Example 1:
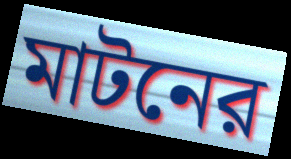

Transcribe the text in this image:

মাটনের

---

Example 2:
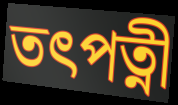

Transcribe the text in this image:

তৎপত্নী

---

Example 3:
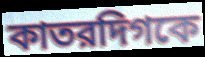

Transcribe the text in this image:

কাতরদিগকে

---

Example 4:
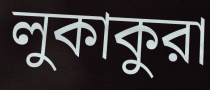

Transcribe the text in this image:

লুকাকুরা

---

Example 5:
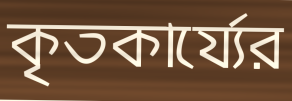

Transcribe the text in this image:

কৃতকার্য্যের